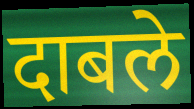
दाबले